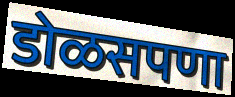
डोळसपणा